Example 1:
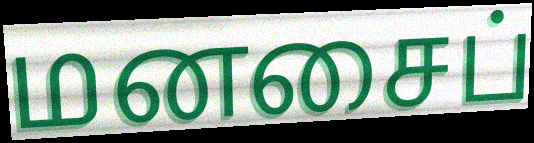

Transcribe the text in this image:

மனசைப்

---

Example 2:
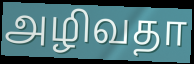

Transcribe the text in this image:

அழிவதா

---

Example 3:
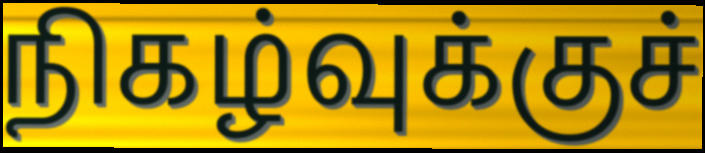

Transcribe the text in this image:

நிகழ்வுக்குச்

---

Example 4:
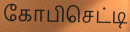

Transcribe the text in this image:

கோபிசெட்டி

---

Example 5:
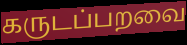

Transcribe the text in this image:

கருடப்பறவை